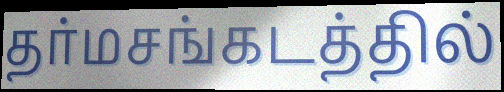
தர்மசங்கடத்தில்